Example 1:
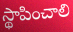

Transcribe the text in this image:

స్థాపించాలి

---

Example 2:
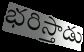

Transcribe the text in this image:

భరిస్తాడు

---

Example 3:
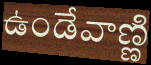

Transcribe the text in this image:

ఉండేవాణ్ణి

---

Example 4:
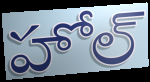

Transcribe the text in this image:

హోల్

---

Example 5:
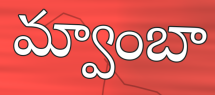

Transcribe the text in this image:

మ్వాంబా